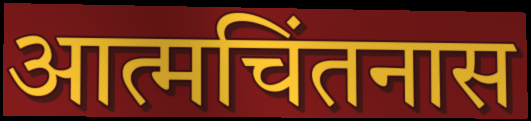
आत्मचिंतनास